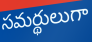
సమర్థులుగా